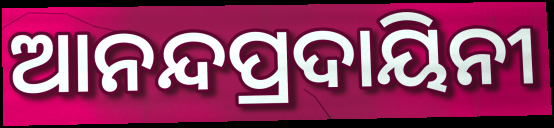
ଆନନ୍ଦପ୍ରଦାୟିନୀ